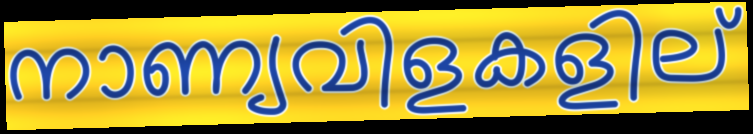
നാണ്യവിളകളില്